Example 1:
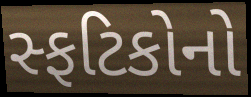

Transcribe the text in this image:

સ્ફટિકોનો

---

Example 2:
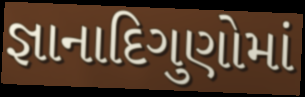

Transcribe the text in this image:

જ્ઞાનાદિગુણોમાં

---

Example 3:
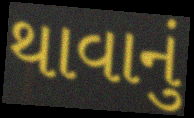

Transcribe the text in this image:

થાવાનું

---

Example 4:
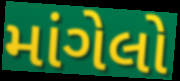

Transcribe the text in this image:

માંગેલો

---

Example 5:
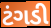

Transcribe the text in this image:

ટંગડી